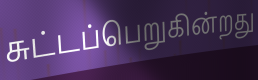
சுட்டப்பெறுகின்றது